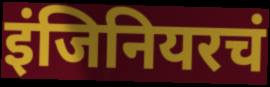
इंजिनियरचं